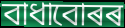
বাধাবোৰৰ